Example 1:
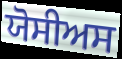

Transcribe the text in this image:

ਯੋਸੀਅਸ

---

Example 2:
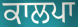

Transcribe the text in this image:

ਕਾਲਪਾ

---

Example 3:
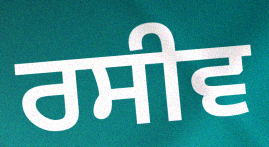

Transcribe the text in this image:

ਰਸੀਵ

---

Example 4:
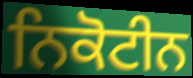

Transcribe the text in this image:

ਨਿਕੋਟੀਨ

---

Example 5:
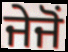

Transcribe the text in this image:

ਜੇਜੋਂ